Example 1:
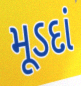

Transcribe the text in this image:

મૂડદાં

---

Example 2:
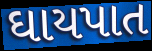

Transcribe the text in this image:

ઘાયપાત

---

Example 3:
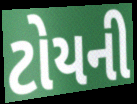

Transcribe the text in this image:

ટોયની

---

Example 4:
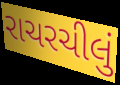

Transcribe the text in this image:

રાચરચીલું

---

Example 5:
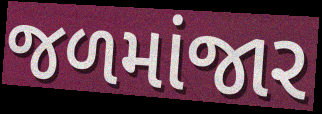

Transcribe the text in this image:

જળમાંજાર